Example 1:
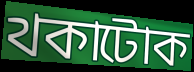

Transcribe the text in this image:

থকাটোক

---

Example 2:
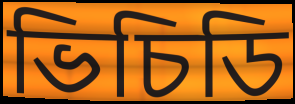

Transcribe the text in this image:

ভিচিডি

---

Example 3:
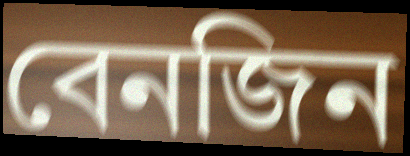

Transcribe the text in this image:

বেনজিন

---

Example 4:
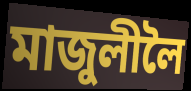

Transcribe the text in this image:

মাজুলীলৈ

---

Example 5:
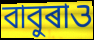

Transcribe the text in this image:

বাবুৰাও